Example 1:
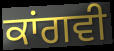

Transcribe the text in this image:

ਕਾਂਗਵੀ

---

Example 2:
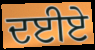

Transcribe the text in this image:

ਦਈਏ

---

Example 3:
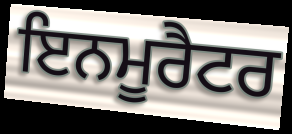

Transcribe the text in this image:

ਇਨਮੂਰੈਟਰ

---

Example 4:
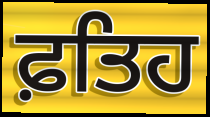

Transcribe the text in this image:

ਫ਼ਤਿਹ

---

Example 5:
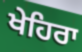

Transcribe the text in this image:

ਖੇਹਿਰਾ